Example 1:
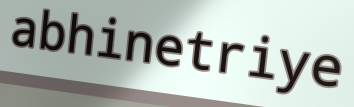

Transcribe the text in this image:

abhinetriye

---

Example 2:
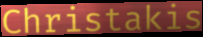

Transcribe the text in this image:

Christakis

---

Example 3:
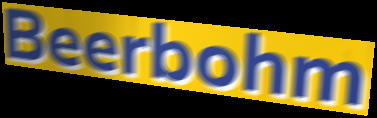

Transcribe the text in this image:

Beerbohm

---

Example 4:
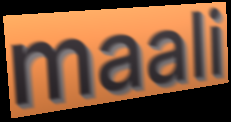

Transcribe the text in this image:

maali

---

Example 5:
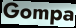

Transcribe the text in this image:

Gompa